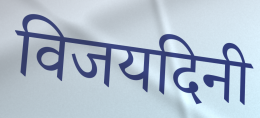
विजयदिनी